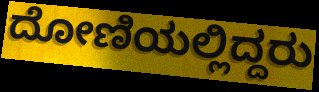
ದೋಣಿಯಲ್ಲಿದ್ದರು